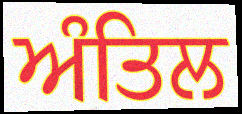
ਅੰਤਿਲ